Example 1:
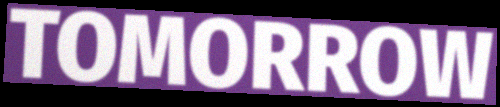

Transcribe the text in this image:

TOMORROW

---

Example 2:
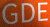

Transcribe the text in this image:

GDE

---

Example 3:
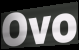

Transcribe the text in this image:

Ovo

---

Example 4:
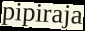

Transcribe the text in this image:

pipiraja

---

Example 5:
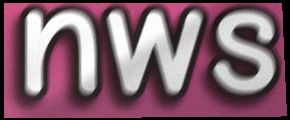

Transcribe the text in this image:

nws